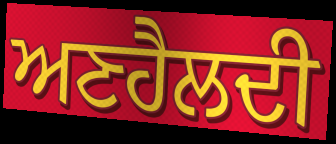
ਅਣਹੈਲਦੀ